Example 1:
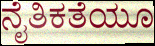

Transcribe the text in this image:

ನೈತಿಕತೆಯೂ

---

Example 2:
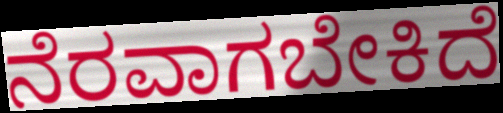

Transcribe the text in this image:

ನೆರವಾಗಬೇಕಿದೆ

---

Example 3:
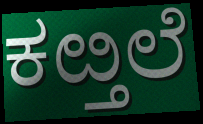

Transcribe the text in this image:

ಕೞ್ತಲೆ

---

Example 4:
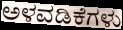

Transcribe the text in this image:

ಅಳವಡಿಕೆಗಳು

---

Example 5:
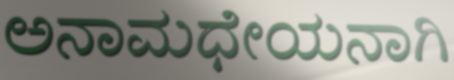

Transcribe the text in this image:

ಅನಾಮಧೇಯನಾಗಿ